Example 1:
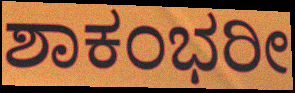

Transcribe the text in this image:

ಶಾಕಂಭರೀ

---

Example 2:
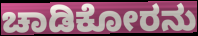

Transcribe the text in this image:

ಚಾಡಿಕೋರನು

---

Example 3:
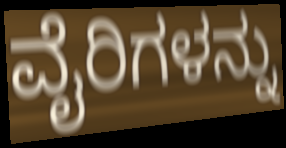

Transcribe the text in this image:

ವೈರಿಗಳನ್ನು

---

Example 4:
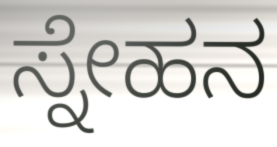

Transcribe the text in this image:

ಸ್ನೇಹನ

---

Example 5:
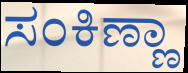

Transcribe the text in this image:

ಸಂಕಿಣ್ಣಾ